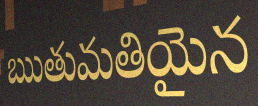
ఋతుమతియైన